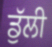
ਡੁੱਲੀ